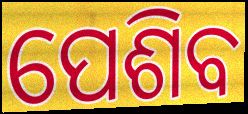
ପେଶିବ